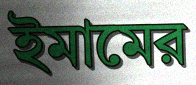
ইমামের